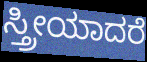
ಸ್ತ್ರೀಯಾದರೆ